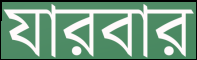
যারবার